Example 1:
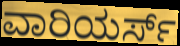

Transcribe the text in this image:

ವಾರಿಯರ್ಸ್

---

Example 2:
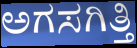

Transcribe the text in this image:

ಅಗಸಗಿತ್ತಿ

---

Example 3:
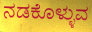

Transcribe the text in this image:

ನಡಕೊಳ್ಳುವ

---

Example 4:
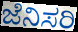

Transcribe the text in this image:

ಜೆನಿಸರಿ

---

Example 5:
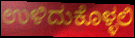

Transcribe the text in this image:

ಉಳಿದುಕೊಳ್ಳಲಿ